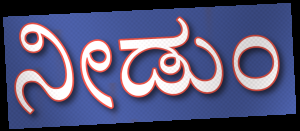
ನೀಡುಂ